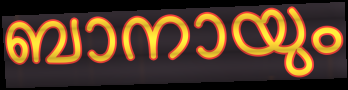
ബാനായും